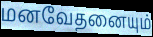
மனவேதனையும்